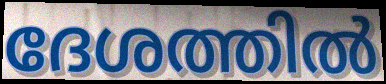
ദേശത്തിൽ